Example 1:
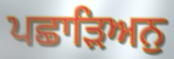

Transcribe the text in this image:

ਪਛਾੜਿਅਨੁ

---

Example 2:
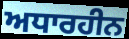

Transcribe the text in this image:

ਅਧਾਰਹੀਨ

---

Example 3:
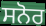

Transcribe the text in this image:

ਸਨੋਰ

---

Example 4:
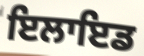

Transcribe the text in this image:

ਇਲਾਇਡ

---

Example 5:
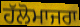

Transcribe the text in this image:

ਹੱਲੋਮਾਜਰਾ